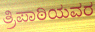
ತ್ರಿಪಾಠಿಯವರ